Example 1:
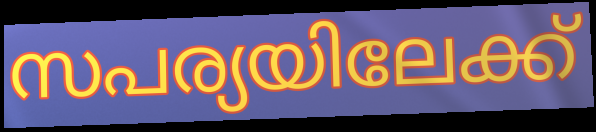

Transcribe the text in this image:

സപര്യയിലേക്ക്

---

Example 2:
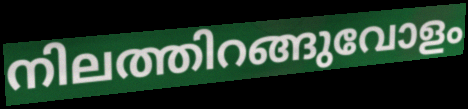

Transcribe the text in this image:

നിലത്തിറങ്ങുവോളം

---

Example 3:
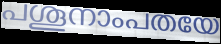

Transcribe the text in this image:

പശൂനാംപതയേ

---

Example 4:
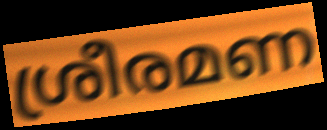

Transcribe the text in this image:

ശ്രീരമണ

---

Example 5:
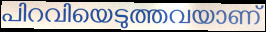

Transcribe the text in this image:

പിറവിയെടുത്തവയാണ്